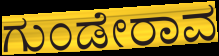
ಗುಂಡೇರಾವ